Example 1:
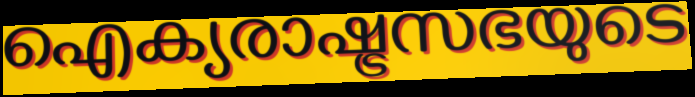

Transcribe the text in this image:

ഐക്യരാഷ്ട്രസഭയുടെ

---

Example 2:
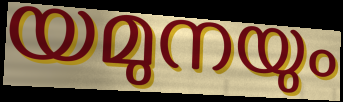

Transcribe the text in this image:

യമുനയും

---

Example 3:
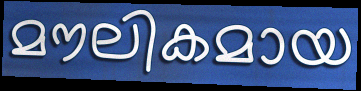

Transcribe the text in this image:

മൗലികമായ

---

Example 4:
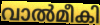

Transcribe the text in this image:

വാൽമീകി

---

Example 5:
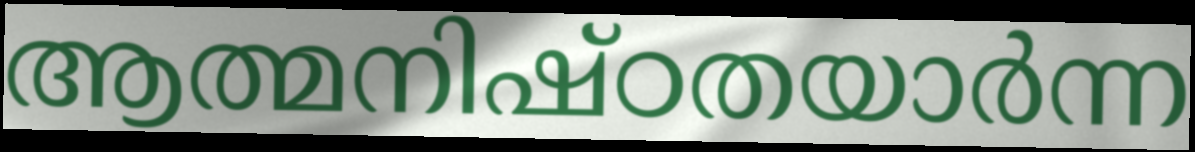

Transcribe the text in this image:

ആത്മനിഷ്ഠതയാർന്ന